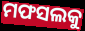
ମଫସଲକୁ